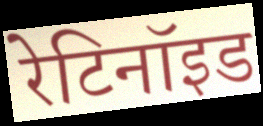
रेटिनॉइड